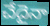
చేదైనా